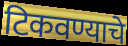
टिकवण्याचे